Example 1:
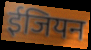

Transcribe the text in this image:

ईजियन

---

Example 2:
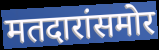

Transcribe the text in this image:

मतदारांसमोर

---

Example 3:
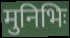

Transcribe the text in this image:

मुनिभिः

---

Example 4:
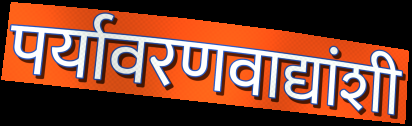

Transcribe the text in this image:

पर्यावरणवाद्यांशी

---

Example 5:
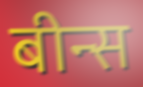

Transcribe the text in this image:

बीन्स